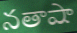
నతాషా